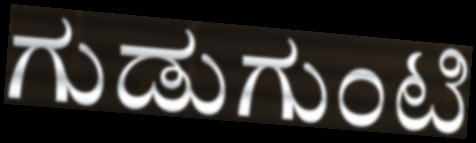
ಗುಡುಗುಂಟಿ